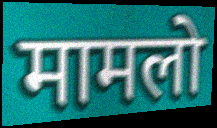
मामलो